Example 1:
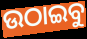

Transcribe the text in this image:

ଉଠାଇବୁ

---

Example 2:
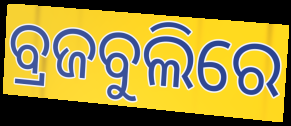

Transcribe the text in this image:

ବ୍ରଜବୁଲିରେ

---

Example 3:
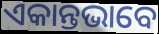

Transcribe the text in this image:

ଏକାନ୍ତଭାବେ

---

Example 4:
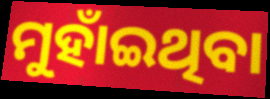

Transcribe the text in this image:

ମୁହାଁଇଥିବା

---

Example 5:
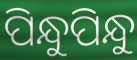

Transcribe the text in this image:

ପିନ୍ଧୁପିନ୍ଧୁ